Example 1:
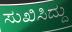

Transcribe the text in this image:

ಸುಖಿಸಿದ್ದು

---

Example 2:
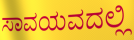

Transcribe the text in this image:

ಸಾವಯವದಲ್ಲಿ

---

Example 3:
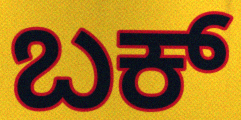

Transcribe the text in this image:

ಬಕ್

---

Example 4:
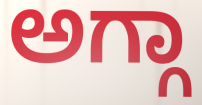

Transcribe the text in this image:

ಅಗ್ಗಾ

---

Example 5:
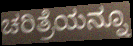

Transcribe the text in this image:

ಚರಿತ್ರೆಯನ್ನೂ